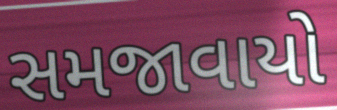
સમજાવાયો